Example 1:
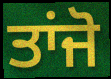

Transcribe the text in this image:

ਤਾਂਜੋ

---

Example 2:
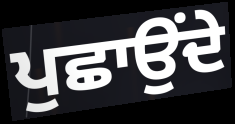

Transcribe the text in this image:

ਪੁਛਾਉਂਦੇ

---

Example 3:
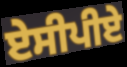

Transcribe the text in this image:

ਏਸੀਪੀਏ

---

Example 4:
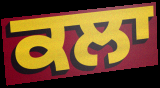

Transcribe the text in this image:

ਕਲਾ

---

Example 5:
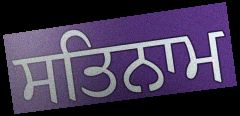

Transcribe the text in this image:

ਸਤਿਨਾਮ